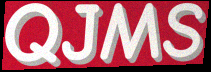
QJMS